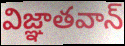
విజ్ఞాతవాన్